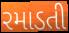
રમાડતી